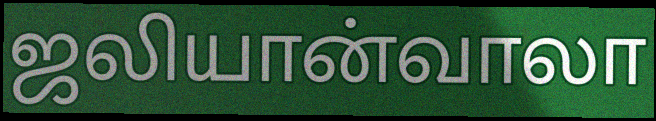
ஜலியான்வாலா